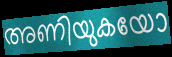
അണിയുകയോ